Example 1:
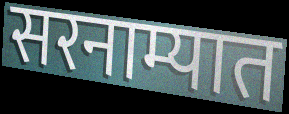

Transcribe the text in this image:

सरनाम्यात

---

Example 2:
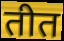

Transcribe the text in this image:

तीत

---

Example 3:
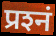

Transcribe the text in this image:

प्रश्‍नं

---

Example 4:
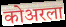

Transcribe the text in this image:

कोअरला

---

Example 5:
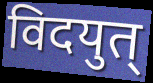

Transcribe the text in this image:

विदयुत्